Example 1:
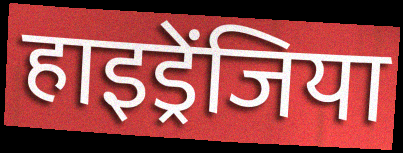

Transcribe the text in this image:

हाइड्रेंजिया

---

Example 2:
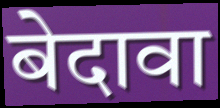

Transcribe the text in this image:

बेदावा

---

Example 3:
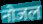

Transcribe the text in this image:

नोजल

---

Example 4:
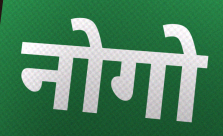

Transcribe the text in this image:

नोगो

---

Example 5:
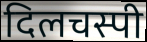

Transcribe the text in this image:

दिलचस्‍पी